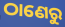
ଠାଣେରୁ